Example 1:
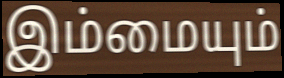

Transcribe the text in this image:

இம்மையும்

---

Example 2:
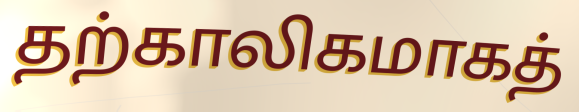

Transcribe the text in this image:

தற்காலிகமாகத்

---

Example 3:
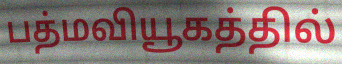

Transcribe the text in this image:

பத்மவியூகத்தில்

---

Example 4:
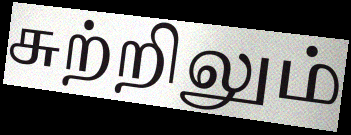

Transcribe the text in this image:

சுற்றிலும்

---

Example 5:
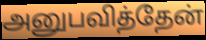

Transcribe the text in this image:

அனுபவித்தேன்